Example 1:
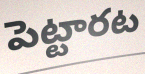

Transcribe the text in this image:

పెట్టారట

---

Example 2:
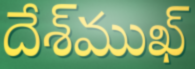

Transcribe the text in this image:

దేశ్‌ముఖ్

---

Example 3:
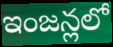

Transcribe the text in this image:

ఇంజన్లలో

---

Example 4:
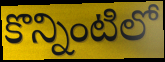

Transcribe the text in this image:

కొన్నింటిలో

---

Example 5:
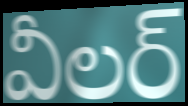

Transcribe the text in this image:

వీలర్